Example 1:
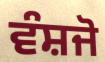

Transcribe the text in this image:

ਵੰਸ਼ਜੋ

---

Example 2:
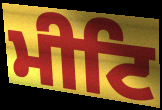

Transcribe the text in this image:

ਮੀਟਿ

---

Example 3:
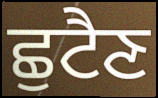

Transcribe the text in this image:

ਛੁਟੈਣ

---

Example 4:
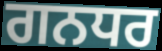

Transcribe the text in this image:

ਗਨਧਰ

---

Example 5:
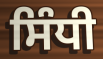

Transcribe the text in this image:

ਸਿੰਧੀ